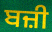
ਬਜ਼ੀ